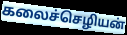
கலைச்செழியன்